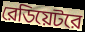
রেডিয়েটরে